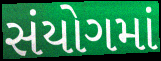
સંયોગમાં